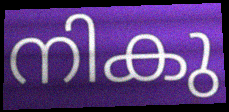
നികു